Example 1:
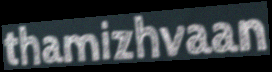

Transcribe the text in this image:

thamizhvaan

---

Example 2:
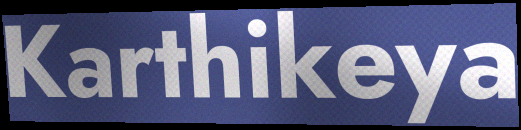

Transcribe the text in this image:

Karthikeya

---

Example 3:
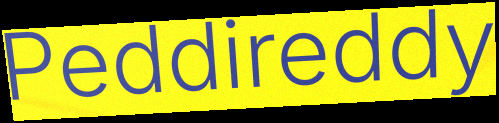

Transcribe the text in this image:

Peddireddy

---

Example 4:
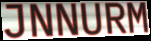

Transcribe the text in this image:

JNNURM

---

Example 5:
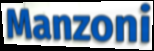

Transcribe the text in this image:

Manzoni